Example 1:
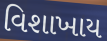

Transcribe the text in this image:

વિશાખાય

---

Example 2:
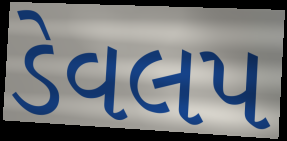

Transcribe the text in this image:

ડેવલપ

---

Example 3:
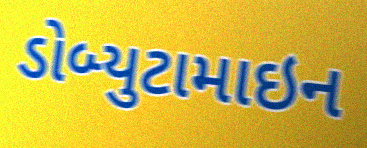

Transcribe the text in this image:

ડોબ્યુટામાઇન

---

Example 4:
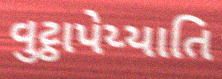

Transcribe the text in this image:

વુટ્ઠાપેય્યાતિ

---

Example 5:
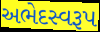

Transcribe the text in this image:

અભેદસ્વરૂપ